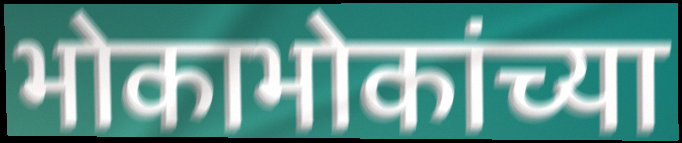
भोकाभोकांच्या